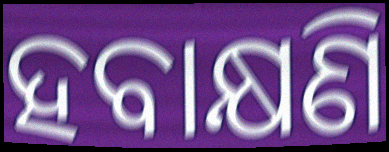
ହବାକ୍ଷଣି